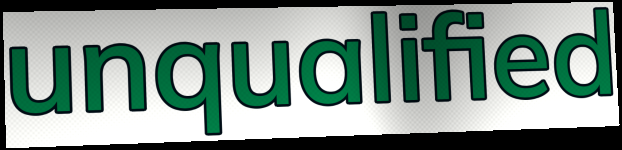
unqualified